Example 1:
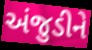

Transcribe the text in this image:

અંજુડીને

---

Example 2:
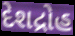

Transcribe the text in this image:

દેશદ્રોહ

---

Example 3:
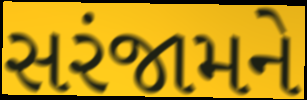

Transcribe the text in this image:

સરંજામને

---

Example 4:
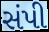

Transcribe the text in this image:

સંપી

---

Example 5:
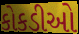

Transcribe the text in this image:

કોકડીઓ